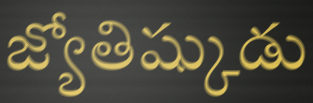
జ్యోతిష్కుడు